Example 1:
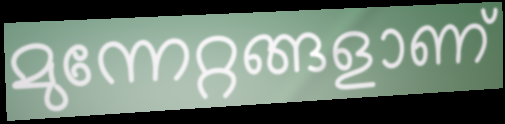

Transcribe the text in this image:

മുന്നേറ്റങ്ങളാണ്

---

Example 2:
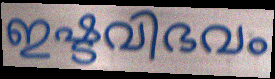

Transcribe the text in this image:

ഇഷ്ടവിഭവം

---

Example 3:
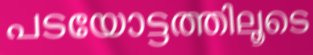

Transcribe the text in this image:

പടയോട്ടത്തിലൂടെ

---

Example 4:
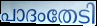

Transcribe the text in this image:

പാദംതേടി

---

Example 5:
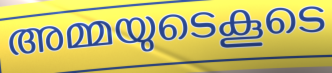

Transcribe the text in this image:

അമ്മയുടെകൂടെ